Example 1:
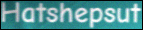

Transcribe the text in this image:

Hatshepsut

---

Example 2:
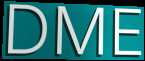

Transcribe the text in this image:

DME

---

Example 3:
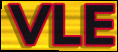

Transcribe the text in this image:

VLE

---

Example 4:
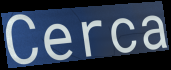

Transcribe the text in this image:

Cerca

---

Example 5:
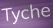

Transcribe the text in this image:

Tyche